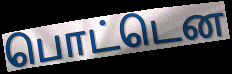
பொட்டென